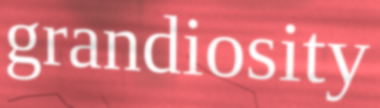
grandiosity